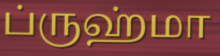
ப்ருஹ்மா